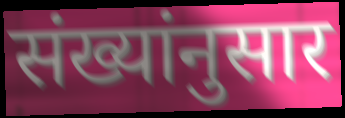
संख्यांनुसार